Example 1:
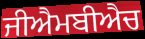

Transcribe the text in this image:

ਜੀਐਮਬੀਐਚ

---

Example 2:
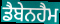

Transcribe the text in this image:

ਡੈਬੇਨਹੈਮ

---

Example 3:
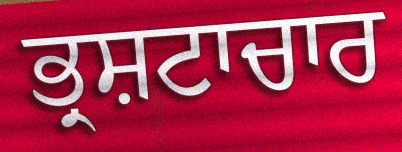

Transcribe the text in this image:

ਭ੍ਰਸ਼ਟਾਚਾਰ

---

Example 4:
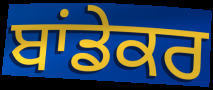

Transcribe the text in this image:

ਬਾਂਡੇਕਰ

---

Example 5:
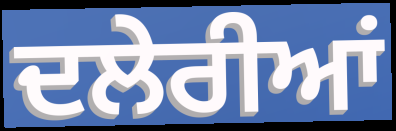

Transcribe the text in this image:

ਦਲੇਰੀਆਂ